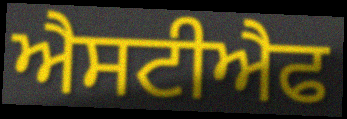
ਐਸਟੀਐਫ